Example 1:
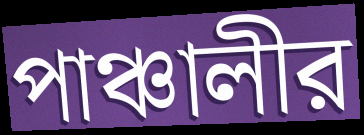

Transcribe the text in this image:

পাঞ্চালীর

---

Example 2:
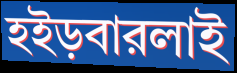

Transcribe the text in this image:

হইড়বারলাই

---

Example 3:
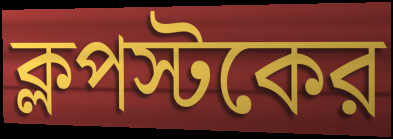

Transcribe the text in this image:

ক্লপস্টকের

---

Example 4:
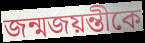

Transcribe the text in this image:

জন্মজয়ন্তীকে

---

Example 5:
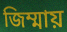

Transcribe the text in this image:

জিম্মায়